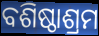
ବଶିଷ୍ଠାଶ୍ରମ